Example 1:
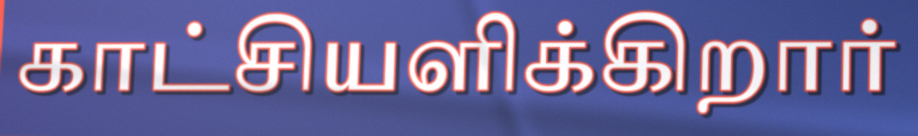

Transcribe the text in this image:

காட்சியளிக்கிறார்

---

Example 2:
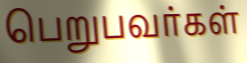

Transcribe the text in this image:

பெறுபவர்கள்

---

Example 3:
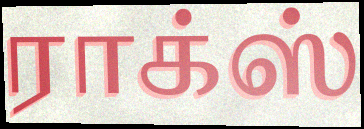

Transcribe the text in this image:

ராக்ஸ்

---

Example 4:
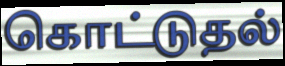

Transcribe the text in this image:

கொட்டுதல்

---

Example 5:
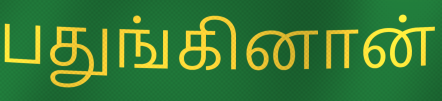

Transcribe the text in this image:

பதுங்கினான்